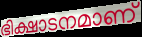
ഭിക്ഷാടനമാണ്